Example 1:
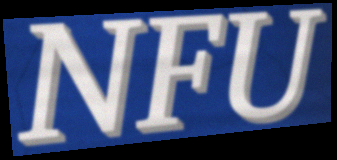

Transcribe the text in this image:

NFU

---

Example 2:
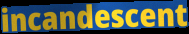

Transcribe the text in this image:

incandescent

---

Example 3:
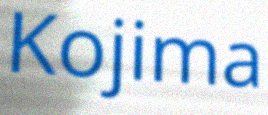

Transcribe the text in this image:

Kojima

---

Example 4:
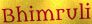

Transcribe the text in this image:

Bhimruli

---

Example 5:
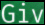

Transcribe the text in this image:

Giv